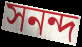
সনন্দ